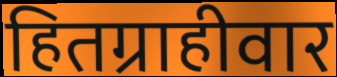
हितग्राहीवार